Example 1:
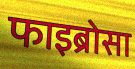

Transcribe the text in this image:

फाइब्रोसा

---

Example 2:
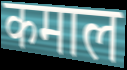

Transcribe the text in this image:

कमाल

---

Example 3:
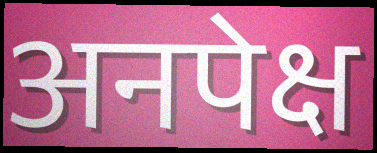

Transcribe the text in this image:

अनपेक्ष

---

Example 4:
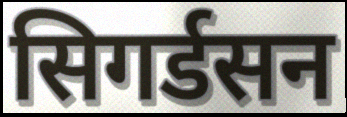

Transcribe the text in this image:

सिगर्डसन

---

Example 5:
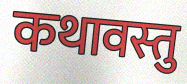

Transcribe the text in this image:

कथावस्‍तु